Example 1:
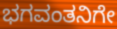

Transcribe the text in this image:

ಭಗವಂತನಿಗೇ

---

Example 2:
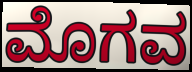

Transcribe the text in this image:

ಮೊಗವ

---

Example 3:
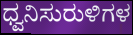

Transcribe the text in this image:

ಧ್ವನಿಸುರುಳಿಗಳ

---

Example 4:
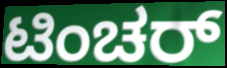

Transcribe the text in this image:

ಟಿಂಚರ್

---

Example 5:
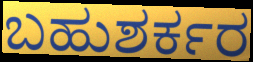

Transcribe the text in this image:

ಬಹುಶರ್ಕರ